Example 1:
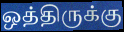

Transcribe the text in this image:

ஒத்திருக்கு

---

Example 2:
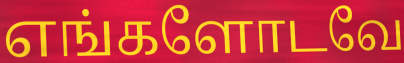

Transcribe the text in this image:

எங்களோடவே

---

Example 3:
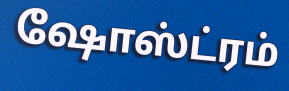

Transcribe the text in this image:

ஷோஸ்ட்ரம்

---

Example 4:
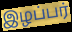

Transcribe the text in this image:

இழப்பர்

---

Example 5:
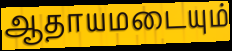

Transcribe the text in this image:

ஆதாயமடையும்